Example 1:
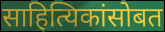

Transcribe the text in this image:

साहित्यिकांसोबत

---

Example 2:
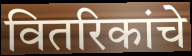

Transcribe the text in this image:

वितरिकांचे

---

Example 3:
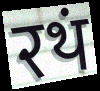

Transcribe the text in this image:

रथं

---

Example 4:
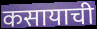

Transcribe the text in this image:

कसायाची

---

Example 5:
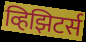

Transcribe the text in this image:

व्हिझिटर्स